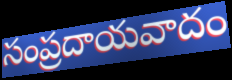
సంప్రదాయవాదం